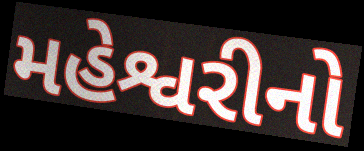
મહેશ્વરીનો